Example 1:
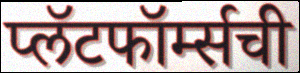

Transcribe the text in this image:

प्लॅटफॉर्म्सची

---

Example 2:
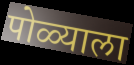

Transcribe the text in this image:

पोळ्याला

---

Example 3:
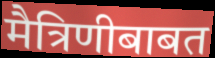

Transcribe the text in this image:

मैत्रिणीबाबत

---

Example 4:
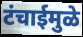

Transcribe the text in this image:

टंचाईमुळे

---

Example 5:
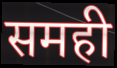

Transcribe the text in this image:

समही